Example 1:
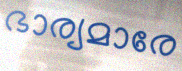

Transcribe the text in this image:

ഭാര്യമാരേ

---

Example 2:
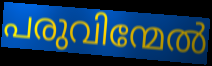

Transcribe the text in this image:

പരുവിന്മേൽ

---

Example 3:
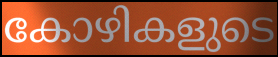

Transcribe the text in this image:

കോഴികളുടെ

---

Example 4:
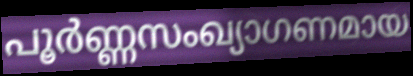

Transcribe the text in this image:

പൂർണ്ണസംഖ്യാഗണമായ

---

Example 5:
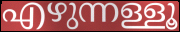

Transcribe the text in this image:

എഴുന്നള്ളൂ